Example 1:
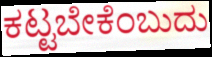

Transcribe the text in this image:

ಕಟ್ಟಬೇಕೆಂಬುದು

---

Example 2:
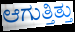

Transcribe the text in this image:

ಆಗುತ್ತಿತ್ತು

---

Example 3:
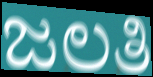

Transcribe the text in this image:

ಜಲತಿ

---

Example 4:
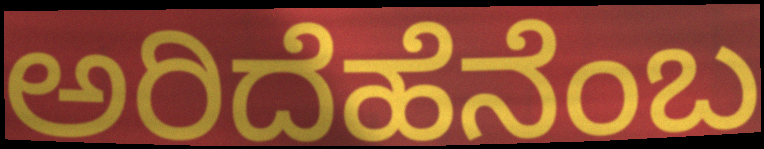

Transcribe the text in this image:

ಅರಿದೆಹೆನೆಂಬ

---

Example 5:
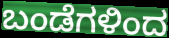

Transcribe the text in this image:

ಬಂಡೆಗಳಿಂದ